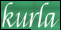
kurla